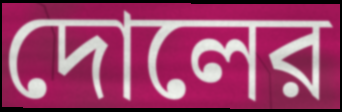
দোলের